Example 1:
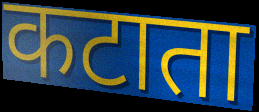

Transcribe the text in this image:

कटाता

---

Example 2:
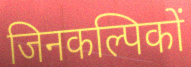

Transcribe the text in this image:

जिनकल्पिकों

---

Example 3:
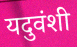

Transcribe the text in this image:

यदुवंशी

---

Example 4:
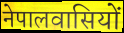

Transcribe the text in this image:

नेपालवासियों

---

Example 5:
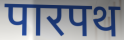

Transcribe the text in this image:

पारपथ